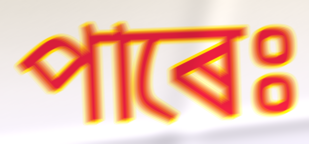
পাৰেঃ